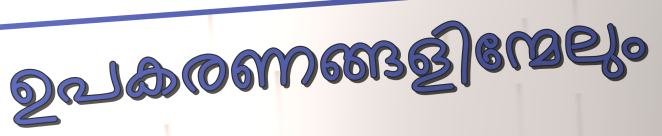
ഉപകരണങ്ങളിന്മേലും